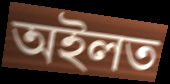
অইলত